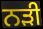
ਨੜੀ